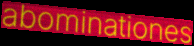
abominationes